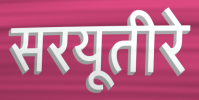
सरयूतीरे